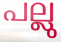
പല്ലു